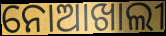
ନୋଆଖାଲୀ